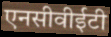
एनसीवीईटी